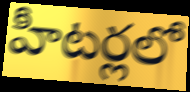
హీటర్లలో